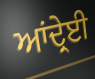
ਆਂਦ੍ਰੇਈ